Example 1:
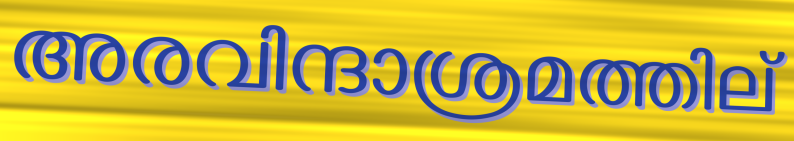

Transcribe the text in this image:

അരവിന്ദാശ്രമത്തില്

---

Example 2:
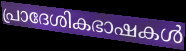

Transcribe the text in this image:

പ്രാദേശികഭാഷകൾ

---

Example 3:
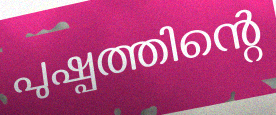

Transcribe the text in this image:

പുഷ്പത്തിന്റെ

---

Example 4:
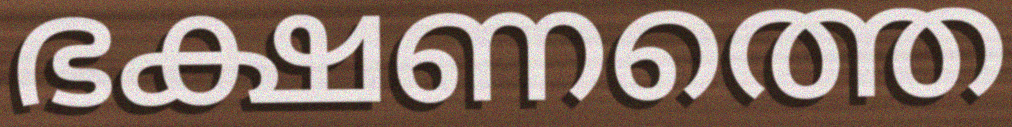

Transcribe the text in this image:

ഭക്ഷണത്തെ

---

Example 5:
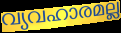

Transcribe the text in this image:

വ്യവഹാരമല്ല